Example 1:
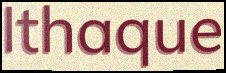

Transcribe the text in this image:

Ithaque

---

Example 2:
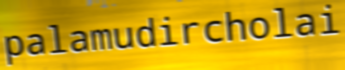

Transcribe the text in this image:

palamudircholai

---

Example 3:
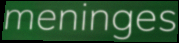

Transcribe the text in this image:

meninges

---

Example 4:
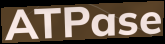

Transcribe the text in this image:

ATPase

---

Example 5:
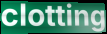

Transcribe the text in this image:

clotting